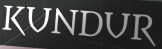
KUNDUR